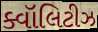
ક્વૉલિટીઝ